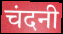
चंदनी